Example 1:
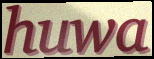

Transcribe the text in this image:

huwa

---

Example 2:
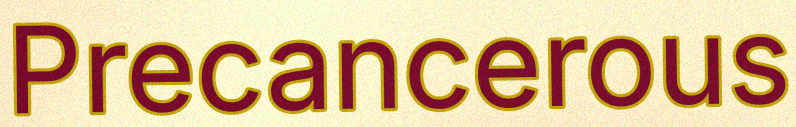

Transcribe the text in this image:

Precancerous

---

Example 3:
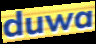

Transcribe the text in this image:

duwa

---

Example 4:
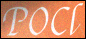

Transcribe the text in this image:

POCl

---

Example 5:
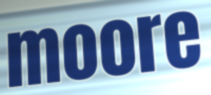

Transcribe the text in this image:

moore